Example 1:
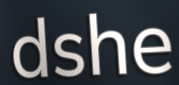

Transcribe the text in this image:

dshe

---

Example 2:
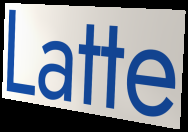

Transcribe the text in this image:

Latte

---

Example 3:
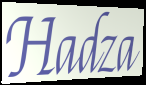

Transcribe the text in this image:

Hadza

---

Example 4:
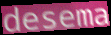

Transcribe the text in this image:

desema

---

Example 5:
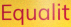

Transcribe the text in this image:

Equalit